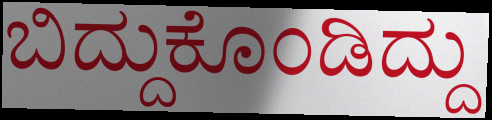
ಬಿದ್ದುಕೊಂಡಿದ್ದು